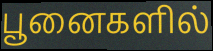
பூனைகளில்